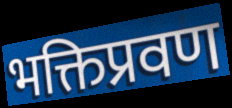
भक्तिप्रवण